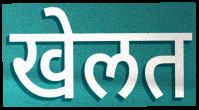
खेलत